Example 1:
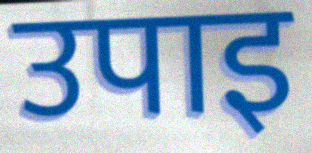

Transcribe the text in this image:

उपाइ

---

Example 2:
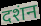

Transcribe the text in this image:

दशंन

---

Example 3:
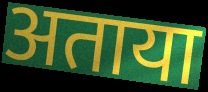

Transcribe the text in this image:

अताया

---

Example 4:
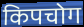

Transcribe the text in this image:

किपचोग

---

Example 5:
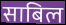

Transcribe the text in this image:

साबिल